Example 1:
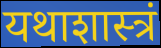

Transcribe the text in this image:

यथाशास्त्रं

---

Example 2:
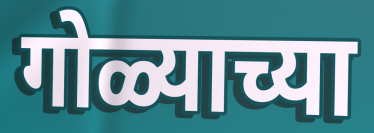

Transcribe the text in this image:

गोळ्याच्या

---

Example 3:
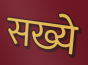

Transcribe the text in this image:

सख्ये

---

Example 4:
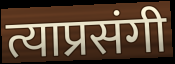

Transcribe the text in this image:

त्याप्रसंगी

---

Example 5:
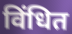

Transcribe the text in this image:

विंधित